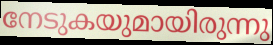
നേടുകയുമായിരുന്നു